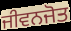
ਜੀਵਨਜੋਤ